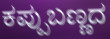
ಕಪ್ಪುಬಣ್ಣದ